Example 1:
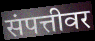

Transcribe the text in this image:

संपत्तीवर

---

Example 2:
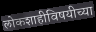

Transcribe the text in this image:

लोकशाहीविषयीच्या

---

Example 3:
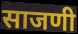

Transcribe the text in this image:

साजणी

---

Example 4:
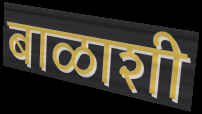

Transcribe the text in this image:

बाळाशी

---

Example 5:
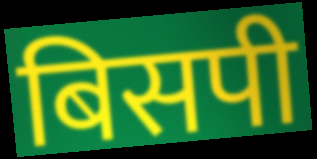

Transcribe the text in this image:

बिसपी